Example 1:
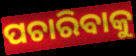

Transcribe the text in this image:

ପଚାରିବାକୁ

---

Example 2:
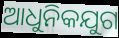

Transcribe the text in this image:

ଆଧୁନିକଯୁଗ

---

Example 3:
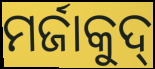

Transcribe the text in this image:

ମର୍ଜାକୁଦ୍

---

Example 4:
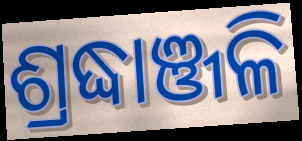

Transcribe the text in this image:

ଶ୍ରଦ୍ଧାଞ୍ଜଳି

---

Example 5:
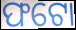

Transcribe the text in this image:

ଫଟୋ